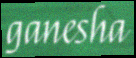
ganesha